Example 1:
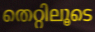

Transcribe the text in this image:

തെറ്റിലൂടെ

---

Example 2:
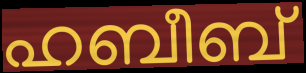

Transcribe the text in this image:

ഹബീബ്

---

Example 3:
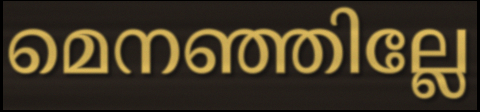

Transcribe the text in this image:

മെനഞ്ഞില്ലേ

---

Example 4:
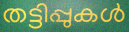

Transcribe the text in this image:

തട്ടിപ്പുകൾ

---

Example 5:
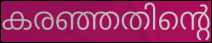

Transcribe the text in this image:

കരഞ്ഞതിന്റെ